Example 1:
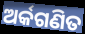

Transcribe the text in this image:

ଅର୍କଗଣିତ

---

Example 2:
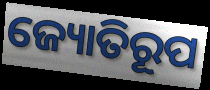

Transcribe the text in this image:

ଜ୍ୟୋତିରୂପ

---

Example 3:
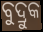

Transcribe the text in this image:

ବୁଦ୍ରୁକ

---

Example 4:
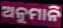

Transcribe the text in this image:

ଅନୁମାନି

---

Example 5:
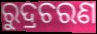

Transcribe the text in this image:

ରୁଦ୍ରଚରଣ